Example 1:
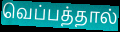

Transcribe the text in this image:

வெப்பத்தால்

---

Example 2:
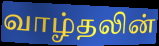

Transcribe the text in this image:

வாழ்தலின்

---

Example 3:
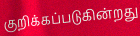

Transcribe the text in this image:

குறிக்கப்படுகின்றது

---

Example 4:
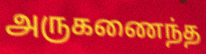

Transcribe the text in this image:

அருகணைந்த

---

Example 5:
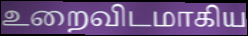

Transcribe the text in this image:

உறைவிடமாகிய